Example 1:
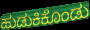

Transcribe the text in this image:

ಹುಡುಕಿಕೊಂಡು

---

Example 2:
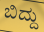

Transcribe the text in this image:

ಬಿದ್ದು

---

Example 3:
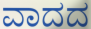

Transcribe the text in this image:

ವಾದದ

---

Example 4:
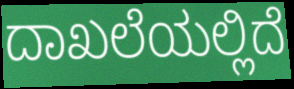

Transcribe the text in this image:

ದಾಖಲೆಯಲ್ಲಿದೆ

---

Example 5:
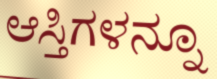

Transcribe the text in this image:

ಆಸ್ತಿಗಳನ್ನೂ